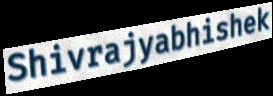
Shivrajyabhishek